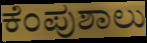
ಕೆಂಪುಶಾಲು